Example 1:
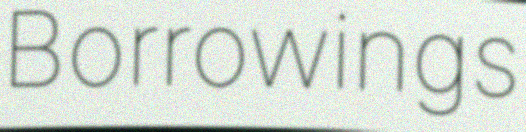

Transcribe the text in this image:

Borrowings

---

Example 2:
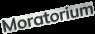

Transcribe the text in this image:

Moratorium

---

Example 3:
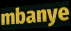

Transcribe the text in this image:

mbanye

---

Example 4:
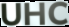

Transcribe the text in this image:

UHC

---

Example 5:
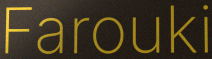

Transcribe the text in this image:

Farouki